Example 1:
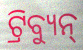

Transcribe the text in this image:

ଟ୍ରିବ୍ୟୁନ୍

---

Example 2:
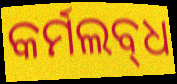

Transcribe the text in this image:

କର୍ମଲବ୍‌ଧ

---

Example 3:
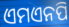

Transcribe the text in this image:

ଏମଏନପି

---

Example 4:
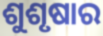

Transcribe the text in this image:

ଶୁଶୃଷାର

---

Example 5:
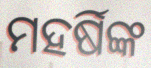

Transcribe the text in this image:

ମହର୍ଷିଙ୍କ